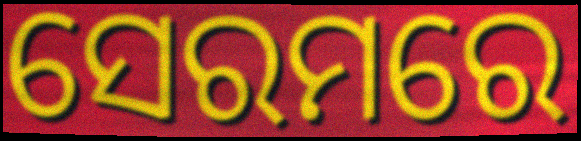
ସେରମରେ